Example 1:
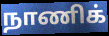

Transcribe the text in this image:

நாணிக்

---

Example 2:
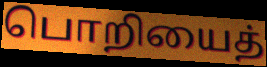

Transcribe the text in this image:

பொறியைத்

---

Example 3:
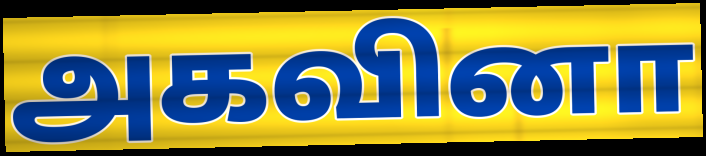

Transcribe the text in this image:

அகவினா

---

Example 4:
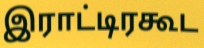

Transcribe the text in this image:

இராட்டிரகூட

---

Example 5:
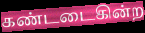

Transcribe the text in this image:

கண்டடைகின்ற